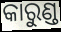
କାରୁଣ୍ଡ